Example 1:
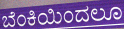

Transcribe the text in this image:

ಬೆಂಕಿಯಿಂದಲೂ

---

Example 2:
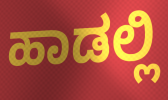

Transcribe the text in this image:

ಹಾಡಲ್ಲಿ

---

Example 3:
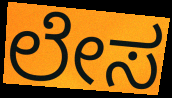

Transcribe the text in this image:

ಲೇಸ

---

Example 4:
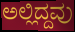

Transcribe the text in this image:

ಅಲ್ಲಿದ್ದವು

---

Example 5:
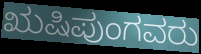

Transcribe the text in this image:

ಋಷಿಪುಂಗವರು